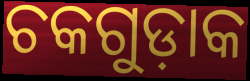
ଚକଗୁଡ଼ାକ